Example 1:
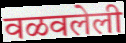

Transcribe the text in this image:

वळवलेली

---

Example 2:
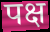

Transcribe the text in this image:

पक्ष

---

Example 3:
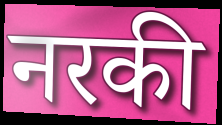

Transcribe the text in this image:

नरकी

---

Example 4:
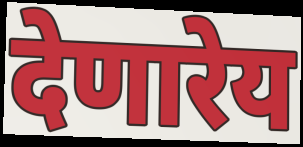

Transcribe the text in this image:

देणारेय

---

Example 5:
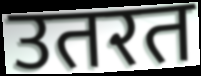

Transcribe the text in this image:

उतरत